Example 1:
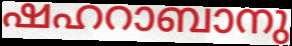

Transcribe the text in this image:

ഷഹറാബാനു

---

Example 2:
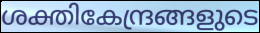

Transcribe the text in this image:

ശക്തികേന്ദ്രങ്ങളുടെ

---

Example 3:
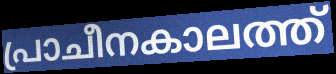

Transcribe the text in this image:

പ്രാചീനകാലത്ത്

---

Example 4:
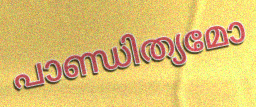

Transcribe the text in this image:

പാണ്ഡിത്യമോ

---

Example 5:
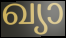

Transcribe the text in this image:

ഖ്യാ